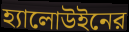
হ্যালোউইনের